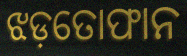
ଝଡ଼ତୋଫାନ